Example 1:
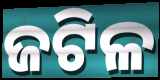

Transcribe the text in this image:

ଜଟିଳ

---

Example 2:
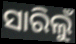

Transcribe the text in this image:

ସାରିଲୁଁ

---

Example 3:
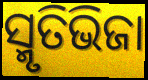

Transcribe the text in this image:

ସ୍ମୃତିଭିଜା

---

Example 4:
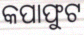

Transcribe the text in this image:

କପାଫୁଟ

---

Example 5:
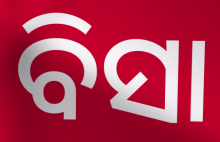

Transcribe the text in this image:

ବିସା